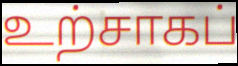
உற்சாகப்